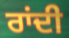
ਰਾਂਦੀ